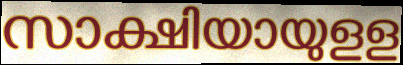
സാക്ഷിയായുളള